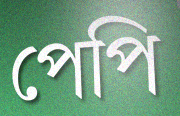
পেপি